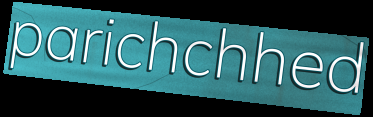
parichchhed